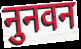
नुनवन